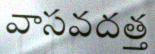
వాసవదత్త